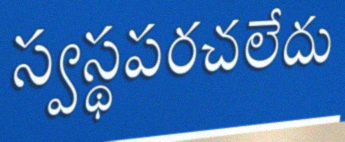
స్వస్థపరచలేదు